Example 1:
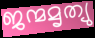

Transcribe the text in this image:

ജന്മമൃത്യു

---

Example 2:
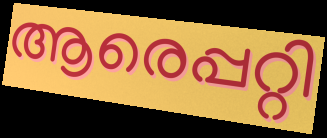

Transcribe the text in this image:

ആരെപ്പറ്റി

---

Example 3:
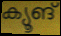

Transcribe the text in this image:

ക്യൂങ്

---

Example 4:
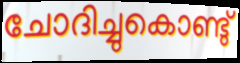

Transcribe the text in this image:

ചോദിച്ചുകൊണ്ടു്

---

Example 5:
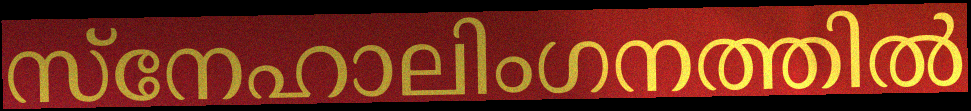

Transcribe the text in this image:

സ്നേഹാലിംഗനത്തിൽ